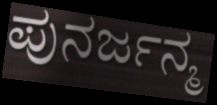
ಪುನರ್ಜನ್ಮ